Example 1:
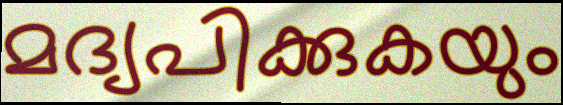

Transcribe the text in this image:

മദ്യപിക്കുകയും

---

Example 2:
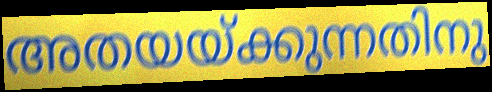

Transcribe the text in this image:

അതയയ്ക്കുന്നതിനു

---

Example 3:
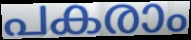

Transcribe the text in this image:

പകരാം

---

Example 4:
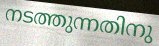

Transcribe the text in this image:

നടത്തുന്നതിനു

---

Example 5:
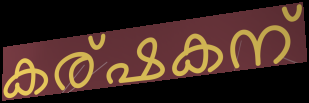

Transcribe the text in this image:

കര്ഷകന്